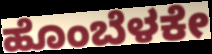
ಹೊಂಬೆಳಕೇ